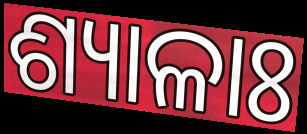
ଶ୍ୟାଳାଃ